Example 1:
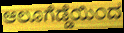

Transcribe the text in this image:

ಆಲೂಗೆಡ್ಡೆಯಿಂದ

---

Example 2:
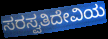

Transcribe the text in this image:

ಸರಸ್ವತಿದೇವಿಯ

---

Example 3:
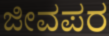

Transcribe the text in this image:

ಜೀವಪರ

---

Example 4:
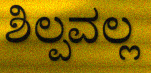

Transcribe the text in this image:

ಶಿಲ್ಪವಲ್ಲ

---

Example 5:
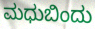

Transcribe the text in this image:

ಮಧುಬಿಂದು